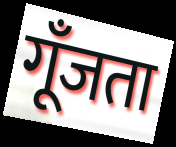
गूँजता